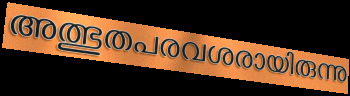
അത്ഭുതപരവശരായിരുന്നു